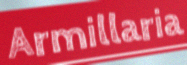
Armillaria